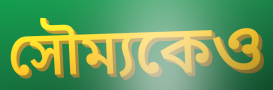
সৌম্যকেও